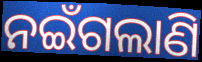
ନଇଁଗଲାଣି